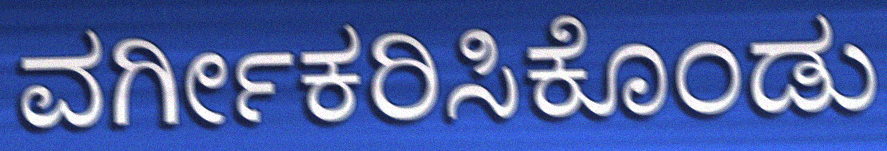
ವರ್ಗೀಕರಿಸಿಕೊಂಡು